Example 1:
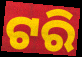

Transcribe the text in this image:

ଟରି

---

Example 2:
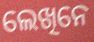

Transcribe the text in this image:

ଲେଖିନେ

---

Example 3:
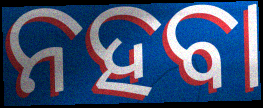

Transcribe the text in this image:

ନହବା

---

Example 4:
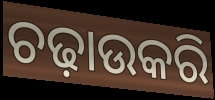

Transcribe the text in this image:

ଚଢ଼ାଉକରି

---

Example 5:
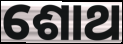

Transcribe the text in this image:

ଶୋଥ